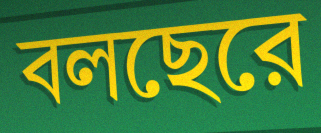
বলছেরে